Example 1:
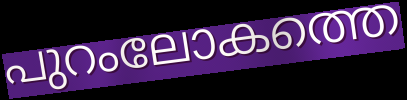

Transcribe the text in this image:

പുറംലോകത്തെ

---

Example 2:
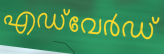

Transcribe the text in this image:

എഡ്‌വേർഡ്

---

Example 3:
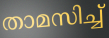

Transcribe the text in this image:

താമസിച്ച്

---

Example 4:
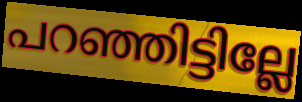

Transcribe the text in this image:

പറഞ്ഞിട്ടില്ലേ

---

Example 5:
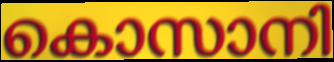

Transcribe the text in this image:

കൊസാനി